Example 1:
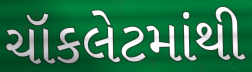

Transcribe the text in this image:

ચૉકલેટમાંથી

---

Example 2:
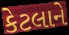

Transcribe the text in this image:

કેટલાને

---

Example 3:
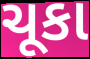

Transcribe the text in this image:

ચૂકા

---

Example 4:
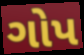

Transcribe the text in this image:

ગોપ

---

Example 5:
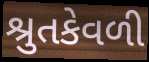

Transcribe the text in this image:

શ્રુતકેવળી